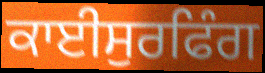
ਕਾਈਸੁਰਫਿੰਗ